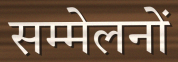
सम्‍मेलनों